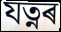
যত্নৰ